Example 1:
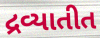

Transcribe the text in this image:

દ્રવ્યાતીત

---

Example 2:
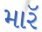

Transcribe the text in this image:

મારૅ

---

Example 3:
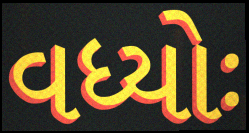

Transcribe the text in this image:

વધ્યોઃ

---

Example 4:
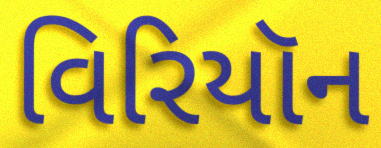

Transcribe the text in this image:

વિરિયૉન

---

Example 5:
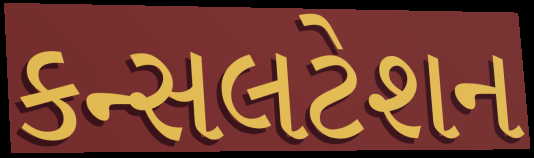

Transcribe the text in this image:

કન્સલટેશન